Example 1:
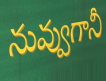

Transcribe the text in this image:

నువ్వుగానీ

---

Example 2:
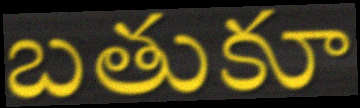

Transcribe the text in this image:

బతుకూ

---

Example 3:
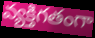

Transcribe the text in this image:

వ్యక్తిగతంగా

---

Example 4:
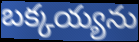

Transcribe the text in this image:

బక్కయ్యను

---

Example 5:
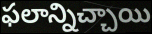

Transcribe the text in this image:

ఫలాన్నిచ్చాయి